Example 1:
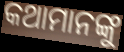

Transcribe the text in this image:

କଥାମାନଙ୍କୁ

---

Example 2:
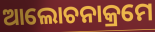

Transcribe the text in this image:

ଆଲୋଚନାକ୍ରମେ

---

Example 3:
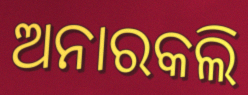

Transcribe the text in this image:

ଅନାରକଲି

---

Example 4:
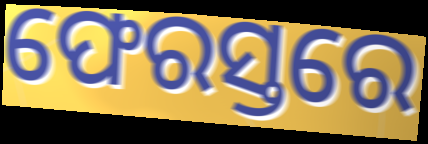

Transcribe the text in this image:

ଫେରସ୍ତରେ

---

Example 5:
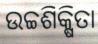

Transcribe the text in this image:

ଉଚ୍ଚଶିକ୍ଷିତା